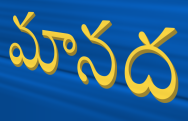
మానద